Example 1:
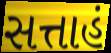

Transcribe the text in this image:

સત્તાહં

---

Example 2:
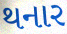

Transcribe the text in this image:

થનાર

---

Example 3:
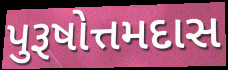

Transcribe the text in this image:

પુરૂષોત્તમદાસ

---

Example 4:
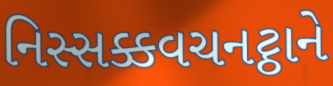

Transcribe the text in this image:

નિસ્સક્કવચનટ્ઠાને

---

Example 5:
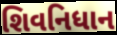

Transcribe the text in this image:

શિવનિધાન